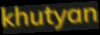
khutyan